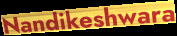
Nandikeshwara